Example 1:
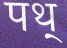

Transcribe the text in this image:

पथ्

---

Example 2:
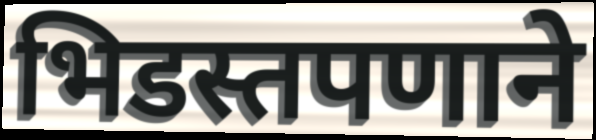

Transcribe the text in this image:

भिडस्तपणाने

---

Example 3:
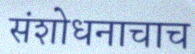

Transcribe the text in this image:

संशोधनाचाच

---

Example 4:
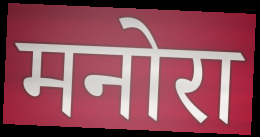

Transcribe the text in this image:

मनोरा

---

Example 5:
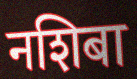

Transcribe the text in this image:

नशिबा